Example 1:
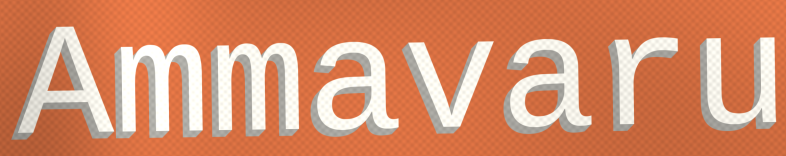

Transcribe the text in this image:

Ammavaru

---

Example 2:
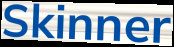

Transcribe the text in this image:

Skinner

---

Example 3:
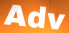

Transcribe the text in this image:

Adv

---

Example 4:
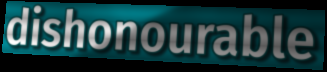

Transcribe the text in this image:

dishonourable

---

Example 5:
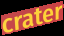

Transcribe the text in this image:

crater